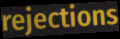
rejections